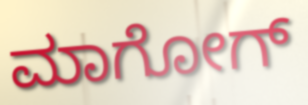
ಮಾಗೋಗ್